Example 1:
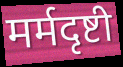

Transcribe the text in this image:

मर्मदृष्टी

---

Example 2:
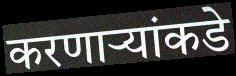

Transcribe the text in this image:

करणाऱ्यांकडे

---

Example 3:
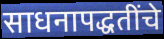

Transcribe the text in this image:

साधनापद्धतींचे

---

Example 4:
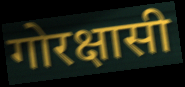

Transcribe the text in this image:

गोरक्षासी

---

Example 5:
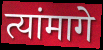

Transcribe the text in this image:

त्यांमागे